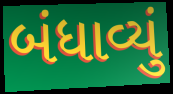
બંધાવ્યું